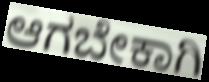
ಆಗಬೇಕಾಗಿ